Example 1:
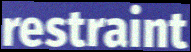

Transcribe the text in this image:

restraint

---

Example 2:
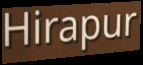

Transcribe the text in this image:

Hirapur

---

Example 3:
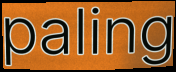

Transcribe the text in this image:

paling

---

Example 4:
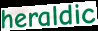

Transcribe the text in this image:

heraldic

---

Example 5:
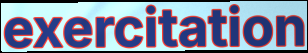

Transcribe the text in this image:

exercitation